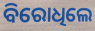
ବିରୋଧିଲେ